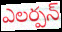
ఎలర్పన్